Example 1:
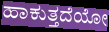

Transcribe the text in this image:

ಹಾಕುತ್ತದೆಯೋ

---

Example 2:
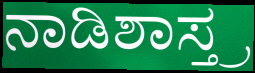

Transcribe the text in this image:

ನಾಡಿಶಾಸ್ತ್ರ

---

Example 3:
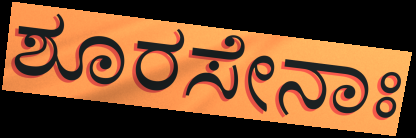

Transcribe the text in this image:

ಶೂರಸೇನಾಃ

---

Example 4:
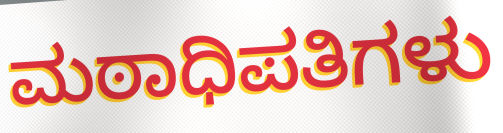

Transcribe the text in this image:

ಮಠಾಧಿಪತಿಗಳು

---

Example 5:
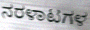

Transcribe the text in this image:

ನರಳಾಟಗಳ